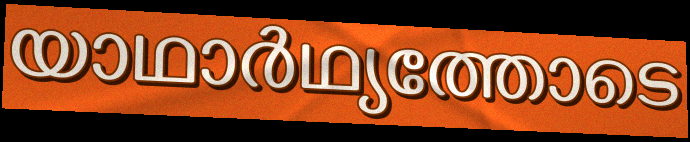
യാഥാർഥ്യത്തോടെ